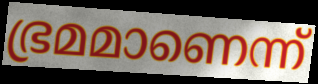
ഭ്രമമാണെന്ന്